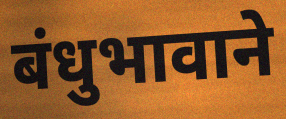
बंधुभावाने